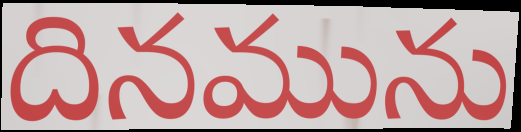
దినమును